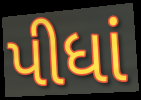
પીધાં